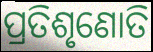
ପ୍ରତିଶୃଣୋତି